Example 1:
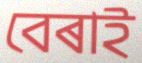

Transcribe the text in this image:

বেৰাই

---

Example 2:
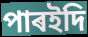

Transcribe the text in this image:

পাৰইদি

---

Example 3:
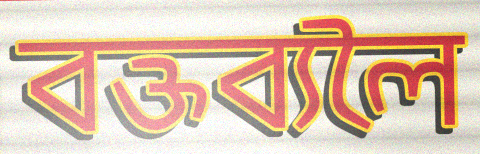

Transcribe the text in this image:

বক্তব্যলৈ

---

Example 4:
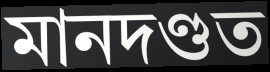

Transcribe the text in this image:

মানদণ্ডত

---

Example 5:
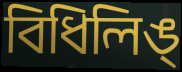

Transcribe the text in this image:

বিধিলিঙ্